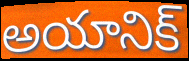
అయానిక్